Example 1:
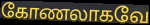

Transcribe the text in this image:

கோணலாகவே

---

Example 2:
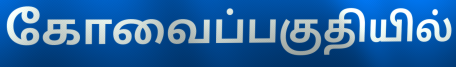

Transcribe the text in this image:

கோவைப்பகுதியில்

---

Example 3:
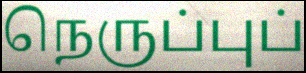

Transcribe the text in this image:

நெருப்புப்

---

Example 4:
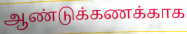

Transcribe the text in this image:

ஆண்டுக்கணக்காக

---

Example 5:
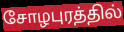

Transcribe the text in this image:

சோழபுரத்தில்